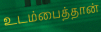
உடம்பைத்தான்